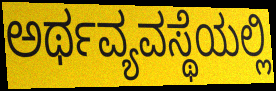
ಅರ್ಥವ್ಯವಸ್ಥೆಯಲ್ಲಿ